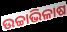
ଉଚ୍ଚାଭିଳାଷ